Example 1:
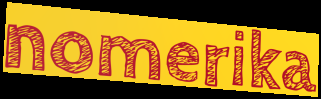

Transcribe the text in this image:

nomerika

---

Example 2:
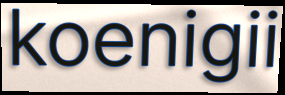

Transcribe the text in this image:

koenigii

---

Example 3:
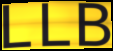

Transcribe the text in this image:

LLB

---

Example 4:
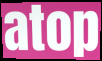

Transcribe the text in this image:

atop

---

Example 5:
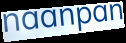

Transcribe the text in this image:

naanpan